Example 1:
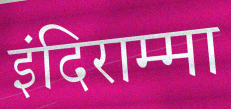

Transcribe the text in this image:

इंदिराम्मा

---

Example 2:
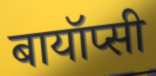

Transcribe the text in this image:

बायॉप्सी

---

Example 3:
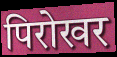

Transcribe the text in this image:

पिरोखर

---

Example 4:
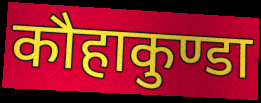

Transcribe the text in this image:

कौहाकुण्डा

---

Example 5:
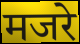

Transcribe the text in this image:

मजरे